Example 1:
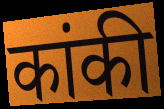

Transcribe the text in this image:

कांकी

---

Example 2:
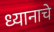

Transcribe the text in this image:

ध्यानाचे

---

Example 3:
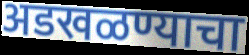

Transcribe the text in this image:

अडखळण्याचा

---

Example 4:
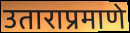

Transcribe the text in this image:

उताराप्रमाणे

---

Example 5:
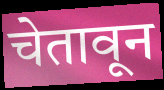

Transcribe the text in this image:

चेतावून